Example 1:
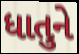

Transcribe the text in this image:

ધાતુને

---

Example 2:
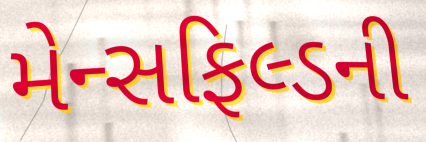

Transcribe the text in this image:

મેન્સફિલ્ડની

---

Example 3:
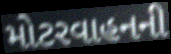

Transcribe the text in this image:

મોટરવાહનની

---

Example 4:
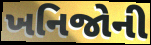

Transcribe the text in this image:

ખનિજોની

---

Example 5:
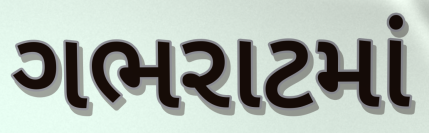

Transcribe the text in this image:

ગભરાટમાં